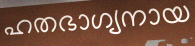
ഹതഭാഗ്യനായ